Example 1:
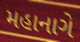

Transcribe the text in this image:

મહાનાગે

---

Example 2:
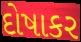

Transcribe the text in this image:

દોષાકર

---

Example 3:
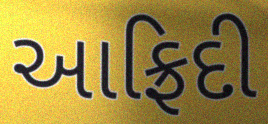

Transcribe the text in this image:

આફ્રિદી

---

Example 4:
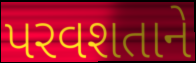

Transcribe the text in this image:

પરવશતાને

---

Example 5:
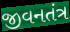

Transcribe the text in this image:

જીવનતંત્ર